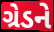
ગ્રેડને